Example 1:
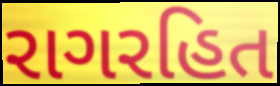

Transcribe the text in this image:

રાગરહિત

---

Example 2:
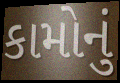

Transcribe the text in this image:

કામોનું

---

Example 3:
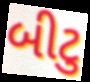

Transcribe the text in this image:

બીટુ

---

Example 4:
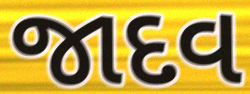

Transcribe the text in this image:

જાદવ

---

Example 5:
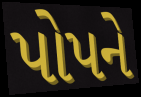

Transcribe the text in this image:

પોપને